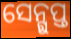
ସେନ୍ଗୁପ୍ତ